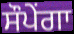
ਸੌਪੇਂਗਾ